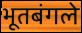
भूतबंगले